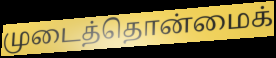
முடைத்தொன்மைக்